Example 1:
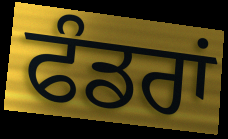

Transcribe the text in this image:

ਫੰਡਰਾਂ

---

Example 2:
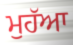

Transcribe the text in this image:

ਮੁਹੱਆ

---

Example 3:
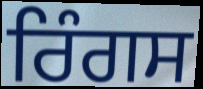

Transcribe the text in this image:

ਰਿੰਗਸ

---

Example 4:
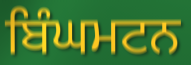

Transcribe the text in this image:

ਬਿੰਘਮਟਨ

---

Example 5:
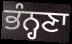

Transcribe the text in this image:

ਭੰਨ੍ਹਣਾ